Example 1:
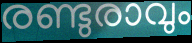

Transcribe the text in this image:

രണ്ടുരാവും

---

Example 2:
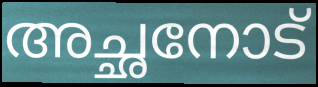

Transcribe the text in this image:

അച്ഛനോട്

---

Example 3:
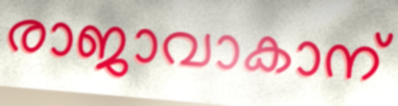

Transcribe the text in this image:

രാജാവാകാന്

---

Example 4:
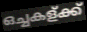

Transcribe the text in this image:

ഒച്ചകള്ക്ക്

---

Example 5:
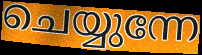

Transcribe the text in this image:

ചെയ്യുന്നേ